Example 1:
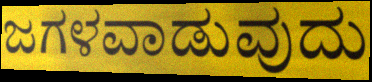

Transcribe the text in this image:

ಜಗಳವಾಡುವುದು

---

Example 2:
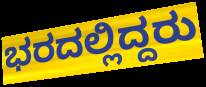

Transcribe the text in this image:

ಭರದಲ್ಲಿದ್ದರು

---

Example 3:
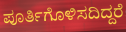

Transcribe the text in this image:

ಪೂರ್ತಿಗೊಳಿಸದಿದ್ದರೆ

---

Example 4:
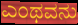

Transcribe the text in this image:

ಎಂಥವನು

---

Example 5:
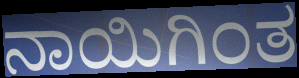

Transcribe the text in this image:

ನಾಯಿಗಿಂತ